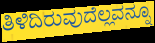
ತಿಳಿದಿರುವುದೆಲ್ಲವನ್ನೂ